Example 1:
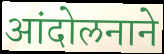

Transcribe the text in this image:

आंदोलनाने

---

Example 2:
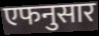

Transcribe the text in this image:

एफनुसार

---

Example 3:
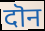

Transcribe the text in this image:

दॊन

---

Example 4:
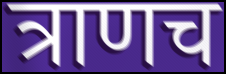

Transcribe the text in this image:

त्राणच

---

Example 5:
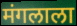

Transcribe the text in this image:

मंगलाला